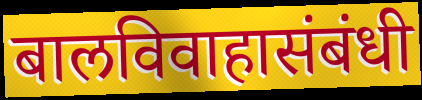
बालविवाहासंबंधी